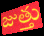
జుత్తు